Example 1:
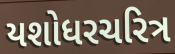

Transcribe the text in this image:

યશોધરચરિત્ર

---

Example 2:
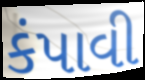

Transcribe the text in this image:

કંપાવી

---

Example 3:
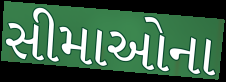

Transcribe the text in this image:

સીમાઓના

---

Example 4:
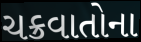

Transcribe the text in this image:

ચક્રવાતોના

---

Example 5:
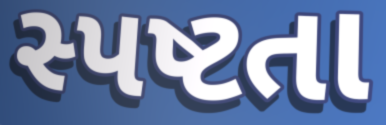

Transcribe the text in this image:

સ્પષ્ટતા